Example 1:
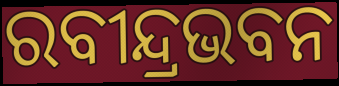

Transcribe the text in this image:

ରବୀନ୍ଦ୍ରଭବନ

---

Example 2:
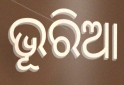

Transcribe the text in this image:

ଭୂରିଆ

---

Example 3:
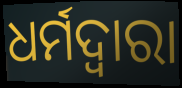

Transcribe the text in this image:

ଧର୍ମଦ୍ୱାରା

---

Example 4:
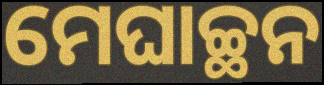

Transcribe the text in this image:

ମେଘାଚ୍ଛନ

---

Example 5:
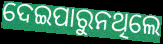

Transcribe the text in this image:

ଦେଇପାରୁନଥିଲେ